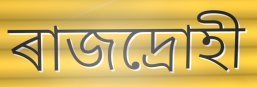
ৰাজদ্ৰোহী